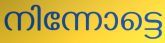
നിന്നോട്ടെ